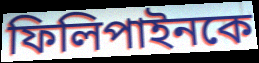
ফিলিপাইনকে